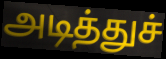
அடித்துச்